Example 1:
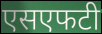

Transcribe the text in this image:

एसएफटी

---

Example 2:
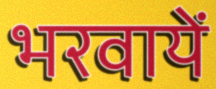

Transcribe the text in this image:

भरवायें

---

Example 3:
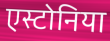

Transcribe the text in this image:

एस्टोनिया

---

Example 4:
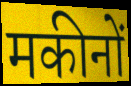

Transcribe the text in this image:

मकीनों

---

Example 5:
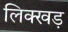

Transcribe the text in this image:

लिक्खड़